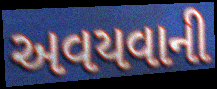
અવયવાની